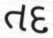
તદ